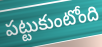
పట్టుకుంటోంది